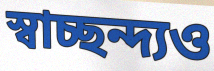
স্বাচ্ছন্দ্যও